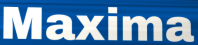
Maxima